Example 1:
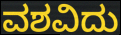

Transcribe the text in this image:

ವಶವಿದು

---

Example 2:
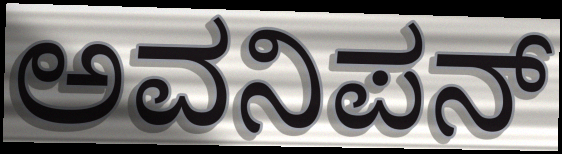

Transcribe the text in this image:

ಅವನಿಪನ್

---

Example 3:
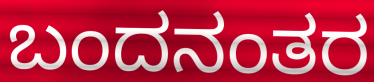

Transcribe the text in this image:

ಬಂದನಂತರ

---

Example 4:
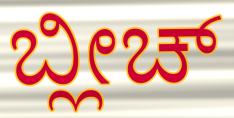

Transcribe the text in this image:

ಬ್ಲೀಚ್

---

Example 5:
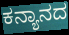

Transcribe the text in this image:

ಕನ್ಯಾನದ